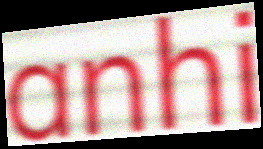
anhi